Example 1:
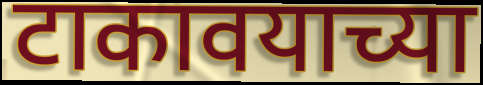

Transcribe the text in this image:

टाकावयाच्या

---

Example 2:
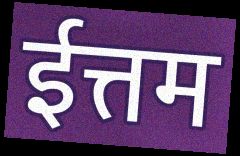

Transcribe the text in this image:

ईत्तम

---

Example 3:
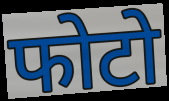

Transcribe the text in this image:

फोटो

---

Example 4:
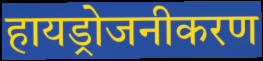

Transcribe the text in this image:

हायड्रोजनीकरण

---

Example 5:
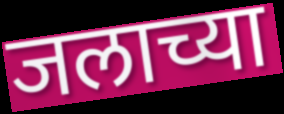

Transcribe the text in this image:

जलाच्या